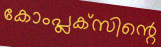
കോംപ്ലക്‌സിന്റെ